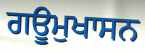
ਗਊਮੁਖਾਸਨ